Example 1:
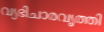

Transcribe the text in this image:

വ്യഭിചാരവൃത്തി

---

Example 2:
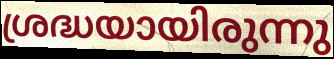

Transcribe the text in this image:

ശ്രദ്ധയായിരുന്നു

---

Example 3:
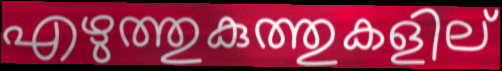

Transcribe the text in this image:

എഴുത്തുകുത്തുകളില്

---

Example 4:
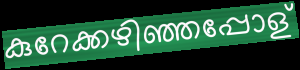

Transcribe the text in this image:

കുറേക്കഴിഞ്ഞപ്പോള്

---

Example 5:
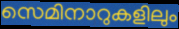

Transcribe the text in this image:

സെമിനാറുകളിലും